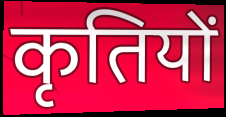
कृतियों